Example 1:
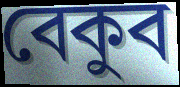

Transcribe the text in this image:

বেকুব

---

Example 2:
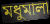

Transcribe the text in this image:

মধুমালা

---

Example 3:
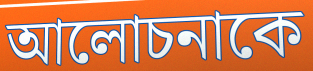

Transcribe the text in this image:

আলোচনাকে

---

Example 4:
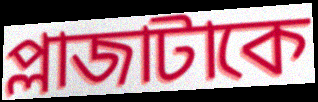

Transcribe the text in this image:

প্লাজাটাকে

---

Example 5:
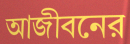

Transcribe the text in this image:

আজীবনের